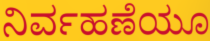
ನಿರ್ವಹಣೆಯೂ